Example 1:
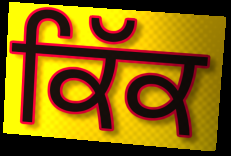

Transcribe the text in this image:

ਕਿੱਕ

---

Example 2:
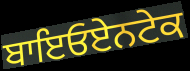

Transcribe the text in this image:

ਬਾਇਓਏਨਟੇਕ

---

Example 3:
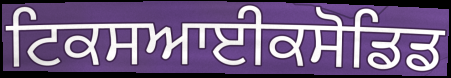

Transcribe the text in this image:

ਟਿਕਸਆਈਕਸੋਡਿਡ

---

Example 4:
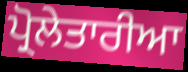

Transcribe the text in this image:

ਪ੍ਰੋਲੇਤਾਰੀਆ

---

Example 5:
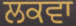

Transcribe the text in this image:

ਲਕਵਾ